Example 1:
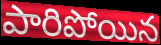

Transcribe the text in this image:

పారిపోయిన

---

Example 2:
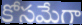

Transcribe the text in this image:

కోసమేగా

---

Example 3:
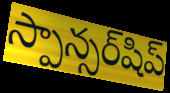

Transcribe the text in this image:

స్పాన్సర్‌షిప్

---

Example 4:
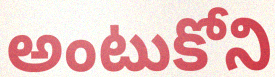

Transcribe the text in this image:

అంటుకోని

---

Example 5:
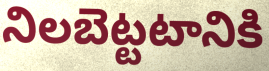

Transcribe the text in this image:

నిలబెట్టటానికి